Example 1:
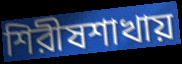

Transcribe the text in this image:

শিরীষশাখায়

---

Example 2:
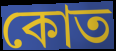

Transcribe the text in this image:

কোত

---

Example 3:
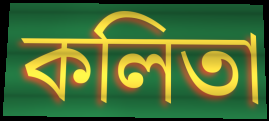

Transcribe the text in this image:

কলিতা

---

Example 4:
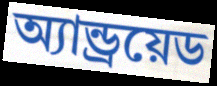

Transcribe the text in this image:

অ্যান্ড্রয়েড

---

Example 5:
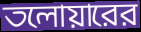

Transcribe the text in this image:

তলোয়ারের